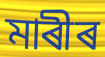
মাৰীৰ